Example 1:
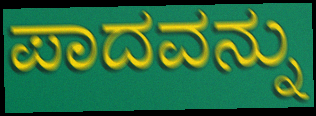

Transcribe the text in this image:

ಪಾದವನ್ನು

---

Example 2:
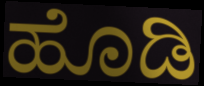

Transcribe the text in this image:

ಹೊಡಿ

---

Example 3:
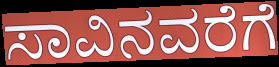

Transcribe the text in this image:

ಸಾವಿನವರೆಗೆ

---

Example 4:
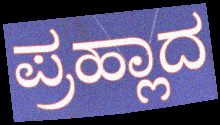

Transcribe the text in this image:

ಪ್ರಹ್ಲಾದ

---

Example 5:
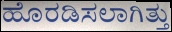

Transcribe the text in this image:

ಹೊರಡಿಸಲಾಗಿತ್ತು